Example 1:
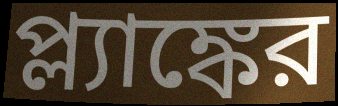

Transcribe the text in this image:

প্ল্যাঙ্কের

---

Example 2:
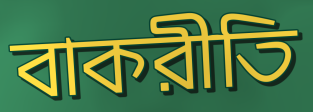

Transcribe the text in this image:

বাকরীতি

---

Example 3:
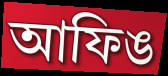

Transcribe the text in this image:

আফিঙ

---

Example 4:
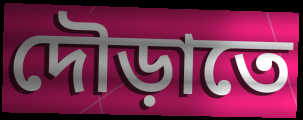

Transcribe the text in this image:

দৌড়াতে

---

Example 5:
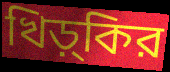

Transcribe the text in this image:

খিড়্‌কির